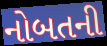
નોબતની